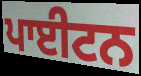
ਪਾਈਟਨ